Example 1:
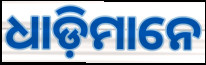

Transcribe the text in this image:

ଧାଡ଼ିମାନେ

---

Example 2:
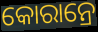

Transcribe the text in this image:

କୋରାନ୍ରେ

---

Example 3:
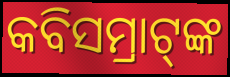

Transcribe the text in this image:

କବିସମ୍ରାଟ୍‌ଙ୍କ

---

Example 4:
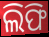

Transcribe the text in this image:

ଲିଫି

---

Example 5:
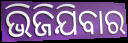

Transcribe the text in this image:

ଭିଜିଯିବାର